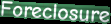
Foreclosure